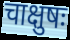
चाक्षुषः